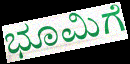
ಭೂಮಿಗೆ